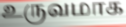
உருவமாக